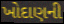
ખોદાણની